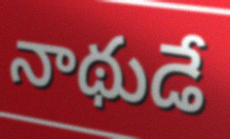
నాథుడే